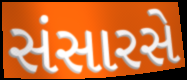
સંસારસે